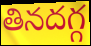
తినదగ్గ